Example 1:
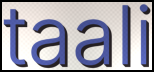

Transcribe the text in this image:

taali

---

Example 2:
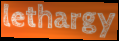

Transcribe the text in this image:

lethargy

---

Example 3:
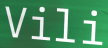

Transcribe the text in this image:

Vili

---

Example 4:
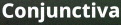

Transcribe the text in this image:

Conjunctiva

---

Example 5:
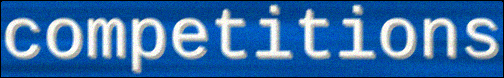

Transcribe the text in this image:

competitions